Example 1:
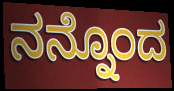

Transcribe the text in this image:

ನನ್ನೊಂದ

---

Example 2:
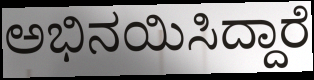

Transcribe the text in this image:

ಅಭಿನಯಿಸಿದ್ದಾರೆ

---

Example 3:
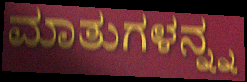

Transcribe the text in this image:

ಮಾತುಗಳನ್ನ್ನ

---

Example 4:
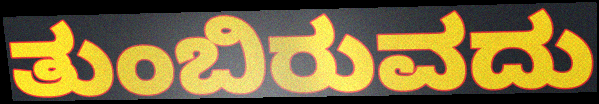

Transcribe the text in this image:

ತುಂಬಿರುವದು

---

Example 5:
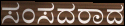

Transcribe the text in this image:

ಸಂಸದರಾದ